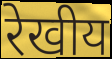
रेखीय